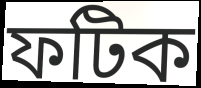
ফটিক